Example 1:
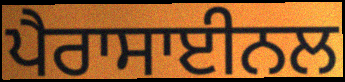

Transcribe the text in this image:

ਪੈਰਾਸਾਈਨਲ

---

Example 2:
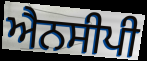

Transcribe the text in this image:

ਐਨਸੀਪੀ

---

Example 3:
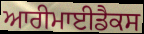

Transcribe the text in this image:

ਆਰੀਮਾਈਡੈਕਸ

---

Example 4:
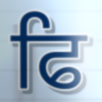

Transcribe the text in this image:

ਫਿ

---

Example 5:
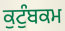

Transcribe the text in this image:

ਕੁਟੁੰਬਕਮ